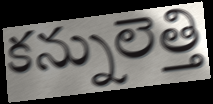
కన్నులెత్తి